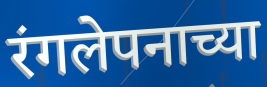
रंगलेपनाच्या